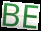
BE